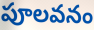
పూలవనం